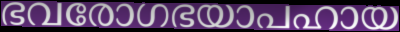
ഭവരോഗഭയാപഹായ